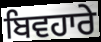
ਬਿਵਹਾਰੇ